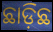
ଛାଡ଼ିଛ